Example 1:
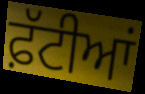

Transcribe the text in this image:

ਫ਼ੱਟੀਆਂ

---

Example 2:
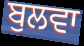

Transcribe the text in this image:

ਬੁਲਵਾ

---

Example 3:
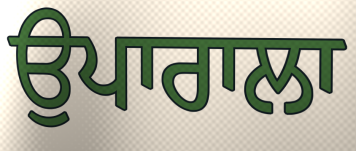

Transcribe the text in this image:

ਉਪਾਰਾਲਾ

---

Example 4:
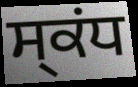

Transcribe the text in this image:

ਸ੍ਕਂਧ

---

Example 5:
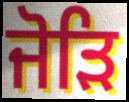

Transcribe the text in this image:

ਜੋੜਿ